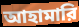
আহামারি